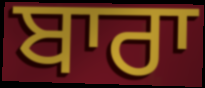
ਬਾਰਾ